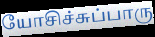
யோசிச்சுப்பாரு